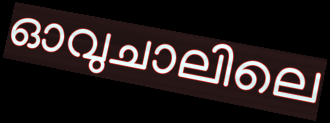
ഓവുചാലിലെ